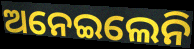
ଅନେଇଲେନି